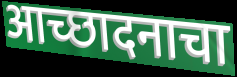
आच्छादनाचा